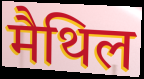
मैथिल